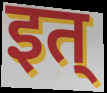
इत्